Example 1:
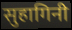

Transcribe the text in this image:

सुहागिनी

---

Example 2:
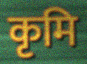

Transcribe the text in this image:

कृमि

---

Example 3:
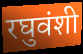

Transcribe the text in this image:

रघुवंशी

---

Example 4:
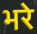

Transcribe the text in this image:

भरे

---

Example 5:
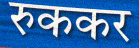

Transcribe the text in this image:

रुककर